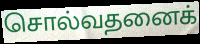
சொல்வதனைக்